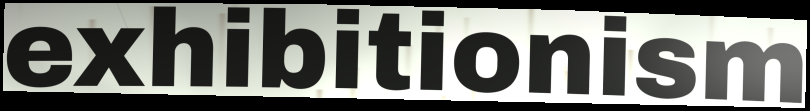
exhibitionism